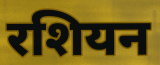
रशियन